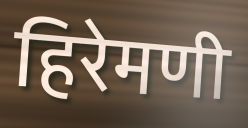
हिरेमणी